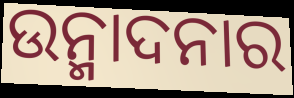
ଉନ୍ମାଦନାର